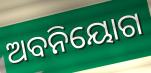
ଅବନିୟୋଗ